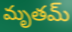
మృతమ్